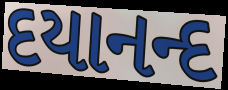
દયાનન્દ